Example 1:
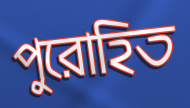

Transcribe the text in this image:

পুরোহিত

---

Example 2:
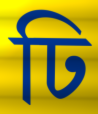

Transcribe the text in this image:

ঢি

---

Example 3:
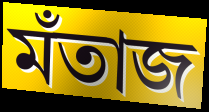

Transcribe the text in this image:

মঁতাজ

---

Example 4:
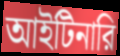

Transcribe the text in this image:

আইটিনারি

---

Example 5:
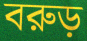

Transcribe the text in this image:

বরুড়